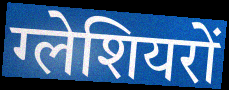
ग्‍लेशियरों